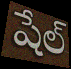
షేల్